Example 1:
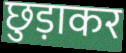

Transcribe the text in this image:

छुड़ाकर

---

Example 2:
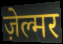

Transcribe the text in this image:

ज़ेल्मर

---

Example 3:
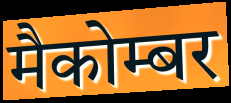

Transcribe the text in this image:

मैकोम्बर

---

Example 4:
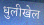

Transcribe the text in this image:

धुलीखेल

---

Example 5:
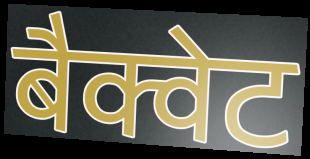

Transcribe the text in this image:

बैक्वेट